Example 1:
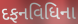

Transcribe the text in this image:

દફનવિધિના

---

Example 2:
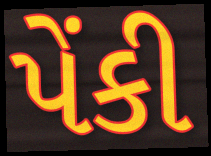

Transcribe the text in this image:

પેંકી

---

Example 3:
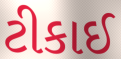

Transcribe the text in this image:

ટીકાઈ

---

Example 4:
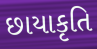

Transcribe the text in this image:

છાયાકૃતિ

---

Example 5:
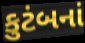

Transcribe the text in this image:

કુટંબનાં